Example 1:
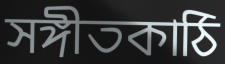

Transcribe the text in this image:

সঙ্গীতকাঠি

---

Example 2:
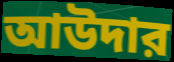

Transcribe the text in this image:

আউদার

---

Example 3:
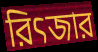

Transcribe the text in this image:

রিৎজার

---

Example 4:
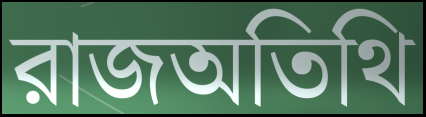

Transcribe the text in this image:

রাজঅতিথি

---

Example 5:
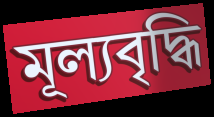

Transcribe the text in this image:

মূল্যবৃদ্ধি